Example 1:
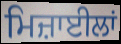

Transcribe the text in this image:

ਮਿਜ਼ਾਈਲਾਂ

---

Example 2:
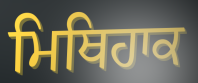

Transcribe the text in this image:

ਮਿਥਿਹਾਕ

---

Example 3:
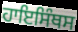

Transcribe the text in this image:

ਹਾਇਸਿੰਥਸ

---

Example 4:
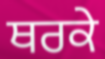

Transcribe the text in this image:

ਥਰਕੇ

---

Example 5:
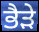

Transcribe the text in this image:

ਭੈਡ਼ੇ